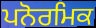
ਪਨੋਰਮਿਕ